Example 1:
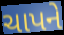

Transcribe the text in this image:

ચાપને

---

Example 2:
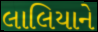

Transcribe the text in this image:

લાલિયાને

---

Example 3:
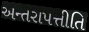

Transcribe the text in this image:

અન્તરાપત્તીતિ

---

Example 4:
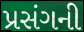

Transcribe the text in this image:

પ્રસંગની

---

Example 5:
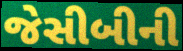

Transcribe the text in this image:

જેસીબીની